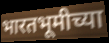
भारतभूमीच्या